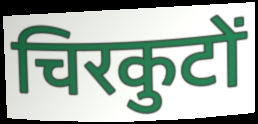
चिरकुटों